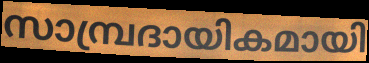
സാമ്പ്രദായികമായി